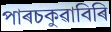
পাৰচকুৱাবিৰি